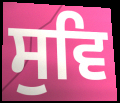
ਸੁਵਿ